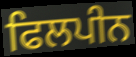
ਫਿਲਪੀਨ